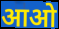
आओ